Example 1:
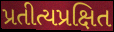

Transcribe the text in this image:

પ્રતીત્યપ્રક્ષિત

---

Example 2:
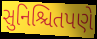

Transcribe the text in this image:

સુનિશ્ચિતપણે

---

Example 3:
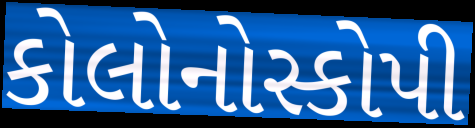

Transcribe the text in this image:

કોલોનોસ્કોપી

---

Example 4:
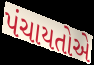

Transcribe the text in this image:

પંચાયતોએ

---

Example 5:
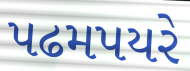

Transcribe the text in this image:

પઢમપયરે